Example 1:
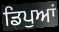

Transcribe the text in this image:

ਡਿਪੁਆਂ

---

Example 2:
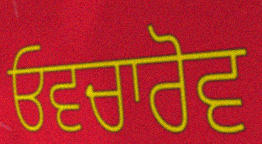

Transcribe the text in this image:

ਓਵਚਾਰੋਵ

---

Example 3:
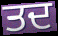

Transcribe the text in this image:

ਤਦ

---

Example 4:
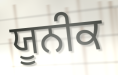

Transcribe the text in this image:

ਯੂਨੀਕ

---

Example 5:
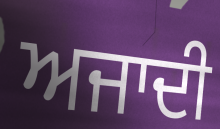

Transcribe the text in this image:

ਅਜਾਦੀ